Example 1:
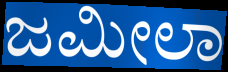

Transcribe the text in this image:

ಜಮೀಲಾ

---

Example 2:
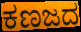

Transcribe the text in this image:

ಕಣಜದ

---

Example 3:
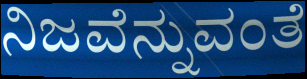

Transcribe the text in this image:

ನಿಜವೆನ್ನುವಂತೆ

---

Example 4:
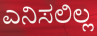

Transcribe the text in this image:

ಎನಿಸಲಿಲ್ಲ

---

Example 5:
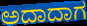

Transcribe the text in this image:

ಅದಾದಾಗ